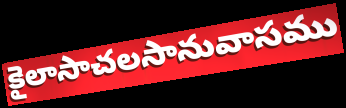
కైలాసాచలసానువాసము